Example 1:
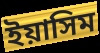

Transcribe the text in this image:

ইয়াসিম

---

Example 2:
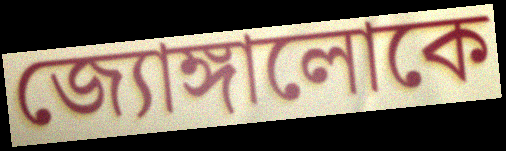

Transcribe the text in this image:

জ্যোঙ্গালোকে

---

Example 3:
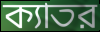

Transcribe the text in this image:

ক্যাতর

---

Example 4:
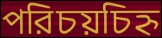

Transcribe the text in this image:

পরিচয়চিহ্ন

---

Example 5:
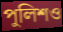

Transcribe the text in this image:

পুলিশও